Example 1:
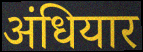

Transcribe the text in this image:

अंधियार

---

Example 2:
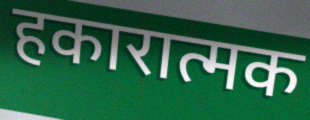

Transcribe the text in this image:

हकारात्मक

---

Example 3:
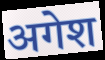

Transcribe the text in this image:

अगेश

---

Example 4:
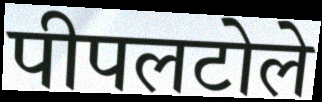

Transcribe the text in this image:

पीपलटोले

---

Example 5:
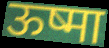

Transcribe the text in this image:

ऊष्‍मा